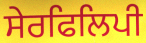
ਸੇਰਫਿਲਿਪੀ